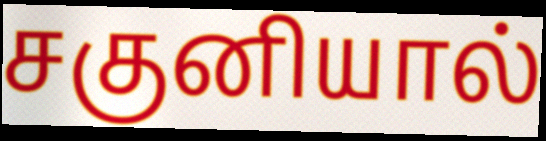
சகுனியால்